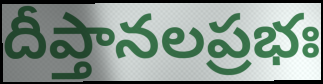
దీప్తానలప్రభః